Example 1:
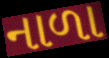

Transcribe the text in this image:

નાળા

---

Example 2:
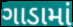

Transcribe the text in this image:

ગાડામાં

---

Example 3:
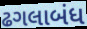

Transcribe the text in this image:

ઢગલાબંધ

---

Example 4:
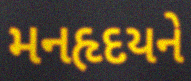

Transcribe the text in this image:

મનહૃદયને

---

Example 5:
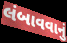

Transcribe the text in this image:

લંબાવવાનું